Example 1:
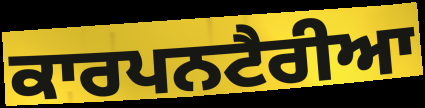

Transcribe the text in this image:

ਕਾਰਪਨਟੈਰੀਆ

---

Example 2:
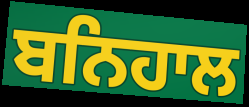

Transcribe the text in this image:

ਬਨਿਹਾਲ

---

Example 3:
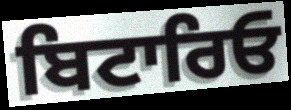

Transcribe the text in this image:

ਬਿਟਾਰਿਓ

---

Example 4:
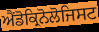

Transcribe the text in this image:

ਐਂਡੋਕ੍ਰਿਨੋਲੋਜਿਸਟ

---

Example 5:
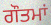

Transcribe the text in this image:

ਗੌਤਮਾਂ